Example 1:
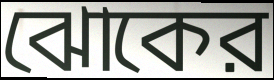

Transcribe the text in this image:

ঝোকের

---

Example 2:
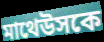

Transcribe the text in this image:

মাথেউসকে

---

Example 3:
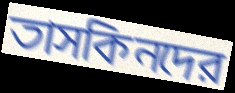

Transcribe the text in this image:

তাসকিনদের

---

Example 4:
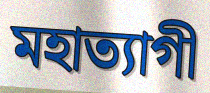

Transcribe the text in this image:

মহাত্যাগী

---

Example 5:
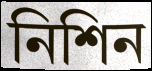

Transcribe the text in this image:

নিশিন